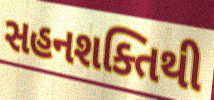
સહનશક્તિથી